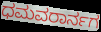
ಧಮವರಾರ್ನಗ